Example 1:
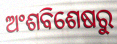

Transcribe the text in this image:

ଅଂଶବିଶେଷରୁ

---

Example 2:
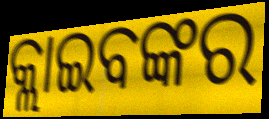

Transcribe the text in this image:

କ୍ଲାଇବଙ୍କର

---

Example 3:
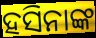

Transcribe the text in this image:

ହସିନାଙ୍କ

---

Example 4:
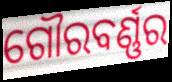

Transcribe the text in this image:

ଗୌରବର୍ଣ୍ଣର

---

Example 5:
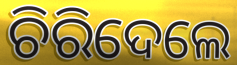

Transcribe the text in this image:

ଚିରିଦେଲେ